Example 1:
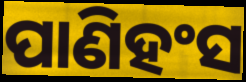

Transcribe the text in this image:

ପାଣିହଂସ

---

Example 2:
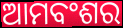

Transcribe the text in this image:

ଆମବଂଶର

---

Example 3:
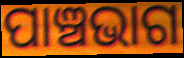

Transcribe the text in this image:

ପାଞ୍ଚଭାଗ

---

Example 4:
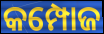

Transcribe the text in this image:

କମ୍ପୋଜ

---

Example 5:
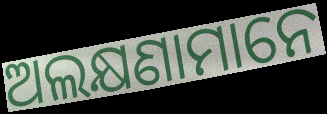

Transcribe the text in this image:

ଅଲକ୍ଷଣାମାନେ